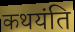
कथयंति